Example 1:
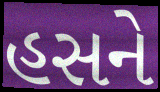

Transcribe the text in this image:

હસને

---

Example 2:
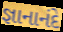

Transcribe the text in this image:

જ્ઞાનાનંદે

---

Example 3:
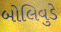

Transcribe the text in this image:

બોલિવુડે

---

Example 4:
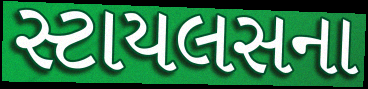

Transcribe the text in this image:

સ્ટાયલસના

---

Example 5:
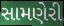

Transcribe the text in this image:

સામણેરી